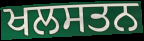
ਖਲਸਤਨ